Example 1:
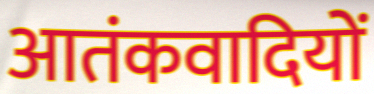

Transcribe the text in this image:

आतंकवादियों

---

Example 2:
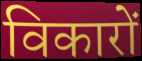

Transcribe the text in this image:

विकारों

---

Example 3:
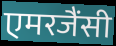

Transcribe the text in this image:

एमरजैंसी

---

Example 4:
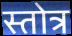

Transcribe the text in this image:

स्तोत्र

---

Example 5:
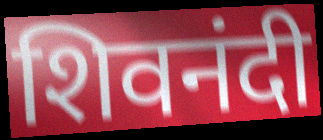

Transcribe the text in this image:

शिवनंदी